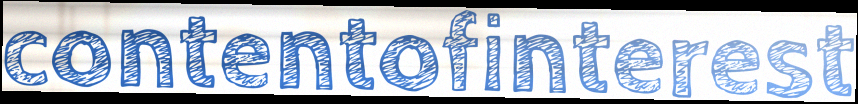
contentofinterest